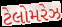
ટેલોમરેઝ